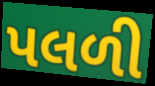
પલળી